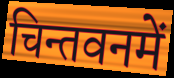
चिन्तवनमें